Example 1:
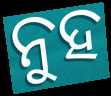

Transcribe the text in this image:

ନୁହ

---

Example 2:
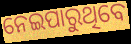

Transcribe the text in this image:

ନେଇପାରୁଥିବେ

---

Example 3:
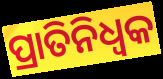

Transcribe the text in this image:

ପ୍ରାତିନିଧ୍ଵକ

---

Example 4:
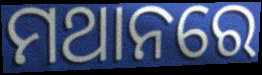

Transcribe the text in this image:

ମଥାନରେ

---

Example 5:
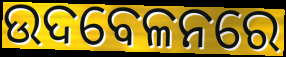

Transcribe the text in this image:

ଉଦବେଳନରେ